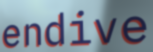
endive